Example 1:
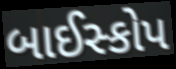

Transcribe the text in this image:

બાઈસ્કોપ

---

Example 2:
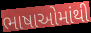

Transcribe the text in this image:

ભાષાઓમાંથી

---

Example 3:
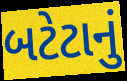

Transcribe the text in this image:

બટેટાનું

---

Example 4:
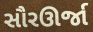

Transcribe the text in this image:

સૌરઊર્જા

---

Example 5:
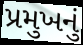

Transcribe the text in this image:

પ્રમુખનું